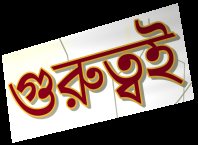
গুরুত্বই